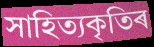
সাহিত্যকৃতিৰ